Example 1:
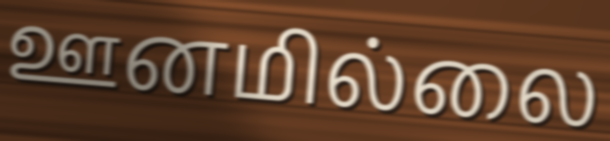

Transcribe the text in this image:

ஊனமில்லை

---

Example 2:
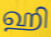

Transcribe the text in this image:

ஹி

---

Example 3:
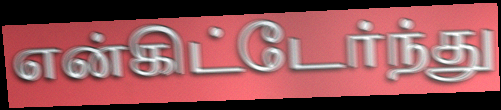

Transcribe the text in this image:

என்கிட்டேர்ந்து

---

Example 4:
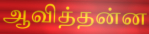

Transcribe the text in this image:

ஆவித்தன்ன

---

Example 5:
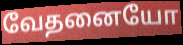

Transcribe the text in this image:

வேதனையோ